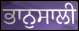
ਭਾਨੁਸਾਲੀ